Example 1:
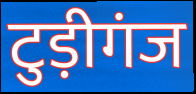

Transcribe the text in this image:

टुड़ीगंज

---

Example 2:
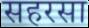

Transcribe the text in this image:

सहरसा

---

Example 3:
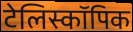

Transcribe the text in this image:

टेलिस्कॉपिक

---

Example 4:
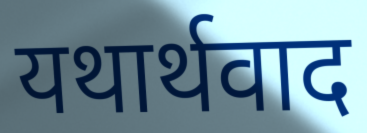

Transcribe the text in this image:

यथार्थवाद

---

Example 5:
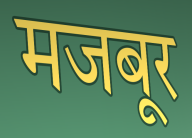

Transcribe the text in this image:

मजबूर